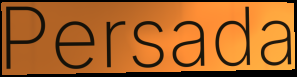
Persada